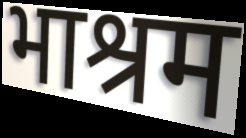
भाश्रम